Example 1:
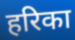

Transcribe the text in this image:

हरिका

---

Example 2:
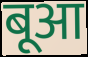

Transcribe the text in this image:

बूआ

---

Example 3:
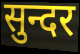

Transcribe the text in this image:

सुन्दर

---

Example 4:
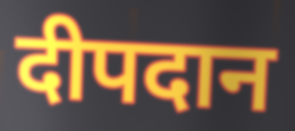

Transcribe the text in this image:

दीपदान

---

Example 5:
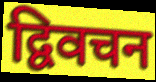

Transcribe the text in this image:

द्विवचन